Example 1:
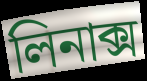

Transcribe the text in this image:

লিনাক্স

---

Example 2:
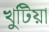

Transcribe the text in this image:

খুটিয়া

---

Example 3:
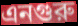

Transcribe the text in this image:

এনগুরু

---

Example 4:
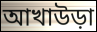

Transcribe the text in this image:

আখাউড়া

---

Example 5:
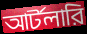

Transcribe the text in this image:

আর্টলারি